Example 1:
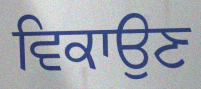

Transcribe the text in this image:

ਵਿਕਾਉਣ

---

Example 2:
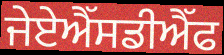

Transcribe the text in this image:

ਜੇਏਐੱਸਡੀਐੱਫ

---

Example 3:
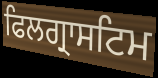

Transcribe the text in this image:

ਫਿਲਗ੍ਰਾਸਟਿਮ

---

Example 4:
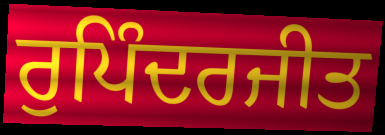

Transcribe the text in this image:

ਰੁਪਿੰਦਰਜੀਤ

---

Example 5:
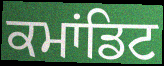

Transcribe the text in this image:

ਕਮਾਂਡਿਟ